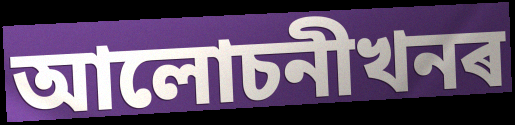
আলোচনীখনৰ